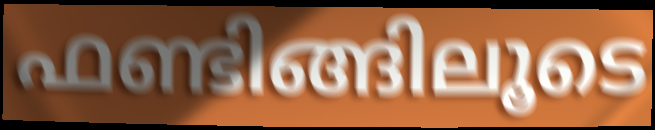
ഫണ്ടിങ്ങിലൂടെ